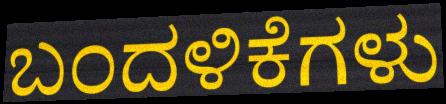
ಬಂದಳಿಕೆಗಳು